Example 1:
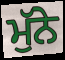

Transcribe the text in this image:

ਮੁੱਨੇ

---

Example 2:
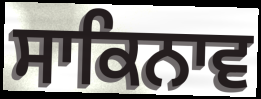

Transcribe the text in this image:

ਸਾਕਿਨਾਵ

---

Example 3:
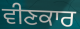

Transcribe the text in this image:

ਵੀਣਕਾਰ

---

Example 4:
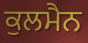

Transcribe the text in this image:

ਕੁਲਮੈਨ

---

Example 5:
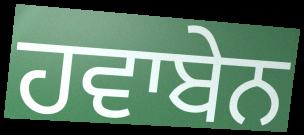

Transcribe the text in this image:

ਹਵਾਬੇਨ